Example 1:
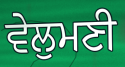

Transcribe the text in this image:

ਵੇਲੁਮਣੀ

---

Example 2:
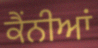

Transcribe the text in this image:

ਕੈਂਨੀਆਂ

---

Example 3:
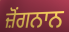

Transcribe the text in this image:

ਜ਼ੋਂਗਨਾਨ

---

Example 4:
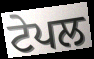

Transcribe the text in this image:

ਟੇਪਲ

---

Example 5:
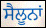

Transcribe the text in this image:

ਸੈਲੂਨਾਂ